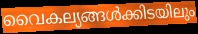
വൈകല്യങ്ങൾക്കിടയിലും